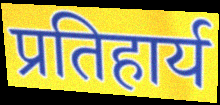
प्रतिहार्य